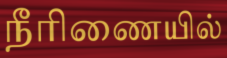
நீரிணையில்